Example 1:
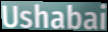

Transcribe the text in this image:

Ushabai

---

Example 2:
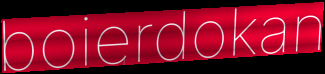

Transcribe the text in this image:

boierdokan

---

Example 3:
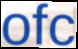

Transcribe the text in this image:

ofc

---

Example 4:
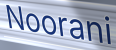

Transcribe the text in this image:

Noorani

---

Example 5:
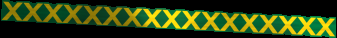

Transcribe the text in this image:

xxxxxxxxxxxxxxxxx